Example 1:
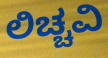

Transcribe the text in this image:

ಲಿಚ್ಚವಿ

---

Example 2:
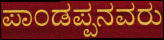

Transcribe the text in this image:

ಪಾಂಡಪ್ಪನವರು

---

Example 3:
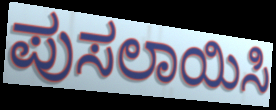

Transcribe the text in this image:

ಪುಸಲಾಯಿಸಿ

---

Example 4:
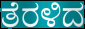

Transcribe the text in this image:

ತೆರಳಿದ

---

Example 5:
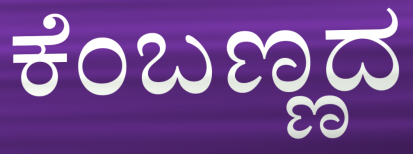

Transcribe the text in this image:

ಕೆಂಬಣ್ಣದ